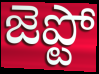
జెప్టో